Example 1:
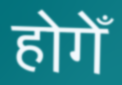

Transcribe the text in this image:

होगेँ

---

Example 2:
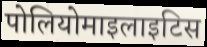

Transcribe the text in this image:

पोलियोमाइलाइटिस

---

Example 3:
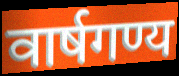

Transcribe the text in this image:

वार्षगण्य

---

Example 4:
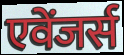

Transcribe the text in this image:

एवेंजर्स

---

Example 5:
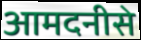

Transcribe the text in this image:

आमदनीसे